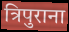
त्रिपुराना